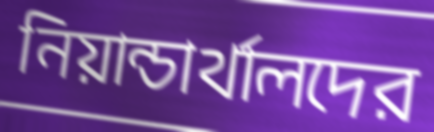
নিয়ান্ডার্থালদের